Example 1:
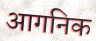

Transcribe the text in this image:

आगनिक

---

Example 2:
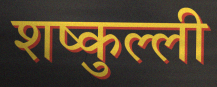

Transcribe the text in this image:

शष्कुल्ली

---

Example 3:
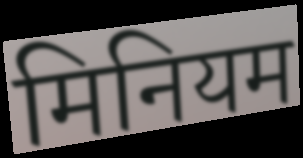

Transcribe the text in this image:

मिनियम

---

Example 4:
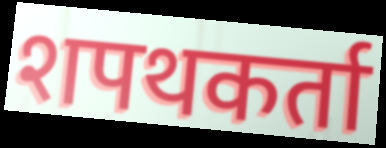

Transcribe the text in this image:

शपथकर्ता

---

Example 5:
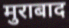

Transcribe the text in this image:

मुराबाद